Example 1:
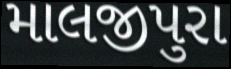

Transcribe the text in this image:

માલજીપુરા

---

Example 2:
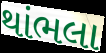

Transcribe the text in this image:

થાંભલા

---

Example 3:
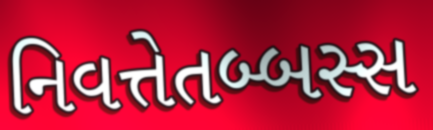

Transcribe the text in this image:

નિવત્તેતબ્બસ્સ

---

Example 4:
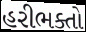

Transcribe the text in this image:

હરીભક્તો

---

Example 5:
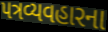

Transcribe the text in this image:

પત્રવ્યવહારના